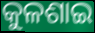
କୁଳଶାଇ